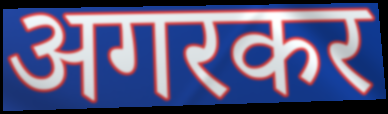
अगरकर